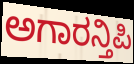
ಅಗಾರನ್ತಿಪಿ